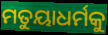
ମତୁୟାଧର୍ମକୁ